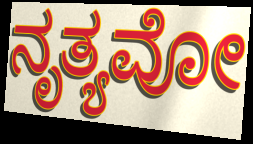
ನೃತ್ಯವೋ